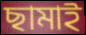
ছামাই